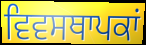
ਵਿਵਸਥਾਪਕਾਂ